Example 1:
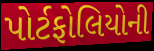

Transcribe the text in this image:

પોર્ટફોલિયોની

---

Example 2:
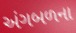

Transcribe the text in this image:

અંગબળના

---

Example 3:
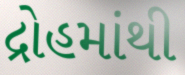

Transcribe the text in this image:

દ્રોહમાંથી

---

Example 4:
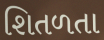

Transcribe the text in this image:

શિતળતા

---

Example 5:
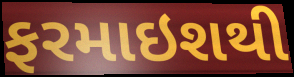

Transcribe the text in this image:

ફરમાઇશથી